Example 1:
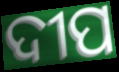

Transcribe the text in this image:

ଦୀପ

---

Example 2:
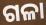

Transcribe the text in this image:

ଗଳା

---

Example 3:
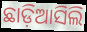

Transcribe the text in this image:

ଛାଡ଼ିଆସିଲି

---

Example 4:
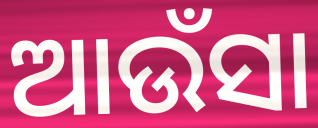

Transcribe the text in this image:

ଆଉଁସା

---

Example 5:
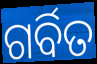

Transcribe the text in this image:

ଗର୍ବିତ